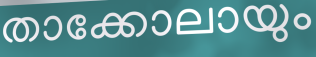
താക്കോലായും